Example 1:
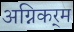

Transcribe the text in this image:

अग्निकर्म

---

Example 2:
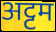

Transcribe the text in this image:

अट्टम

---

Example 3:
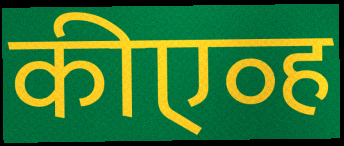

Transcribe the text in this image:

कीएव्ह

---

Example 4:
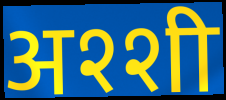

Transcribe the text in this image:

अश्शी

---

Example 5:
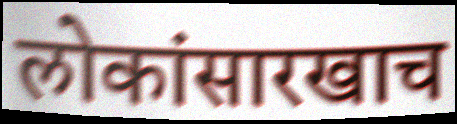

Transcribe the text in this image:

लोकांसारखाच